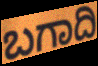
ಬಗಾದಿ